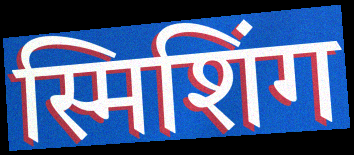
स्मिशिंग